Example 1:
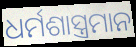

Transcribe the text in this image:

ଧର୍ମଶାସ୍ତ୍ରମାନ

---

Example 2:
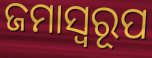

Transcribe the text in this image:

ଜମାସ୍ବରୂପ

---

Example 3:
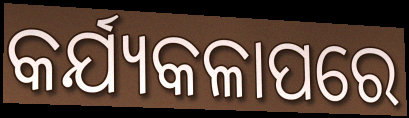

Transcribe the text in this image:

କର୍ଯ୍ୟକଳାପରେ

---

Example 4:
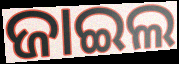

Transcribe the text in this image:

ଜାଇଲ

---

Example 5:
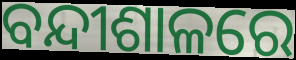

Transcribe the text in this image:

ବନ୍ଦୀଶାଳରେ